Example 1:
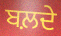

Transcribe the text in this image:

ਬਲ਼ਦੇ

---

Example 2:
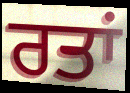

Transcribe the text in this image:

ਰਤਾਂ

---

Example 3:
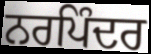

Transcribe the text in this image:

ਨਰਪਿੰਦਰ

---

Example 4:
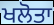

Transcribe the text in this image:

ਖਲੋਤਾ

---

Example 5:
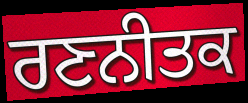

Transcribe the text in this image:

ਰਣਨੀਤਕ